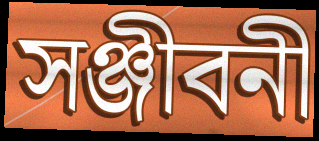
সঞ্জীবনী